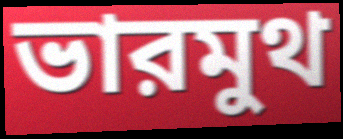
ভারমুথ